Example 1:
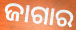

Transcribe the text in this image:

ଜାଗାର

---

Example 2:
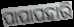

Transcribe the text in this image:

ପାପାପହାରି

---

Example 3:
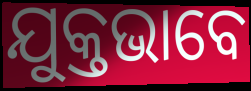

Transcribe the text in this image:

ଯୁକ୍ତଭାବେ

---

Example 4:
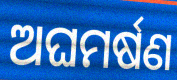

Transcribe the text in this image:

ଅଘମର୍ଷଣ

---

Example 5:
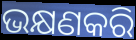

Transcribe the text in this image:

ଭକ୍ଷଣକରି